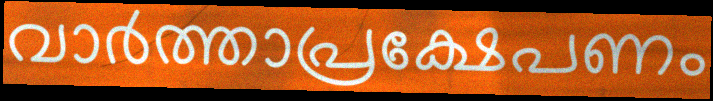
വാർത്താപ്രക്ഷേപണം